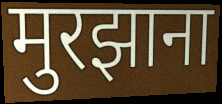
मुरझाना